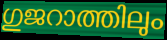
ഗുജറാത്തിലും